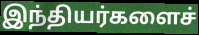
இந்தியர்களைச்